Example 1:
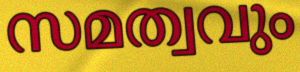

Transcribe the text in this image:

സമത്വവും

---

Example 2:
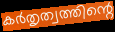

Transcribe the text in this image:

കർതൃത്വത്തിന്റെ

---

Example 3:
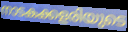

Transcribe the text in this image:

നാടകക്കളരിയുടെ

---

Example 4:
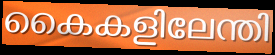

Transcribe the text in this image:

കൈകളിലേന്തി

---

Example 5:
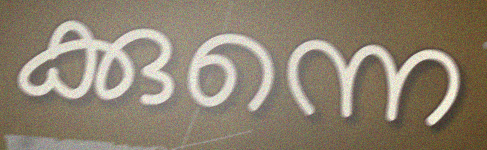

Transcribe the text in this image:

ക്കുന്നെ